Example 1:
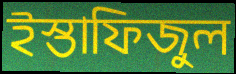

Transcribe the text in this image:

ইস্তাফিজুল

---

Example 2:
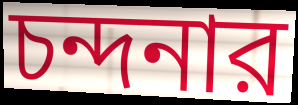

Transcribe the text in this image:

চন্দনার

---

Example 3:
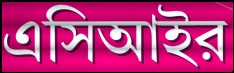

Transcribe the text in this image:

এসিআইর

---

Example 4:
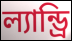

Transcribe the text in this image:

ল্যান্ড্রি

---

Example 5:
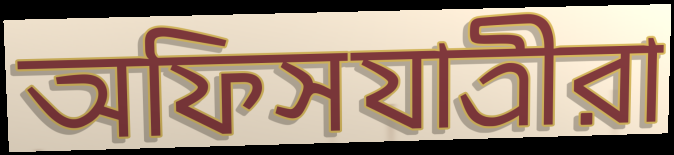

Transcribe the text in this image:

অফিসযাত্রীরা